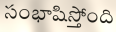
సంభాషిస్తోంది